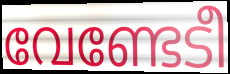
വേണ്ടേടീ